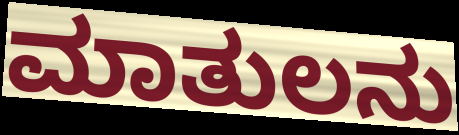
ಮಾತುಲನು